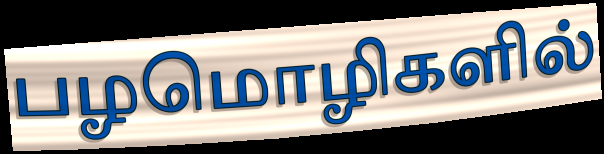
பழமொழிகளில்